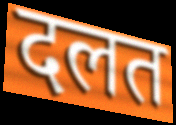
दलत